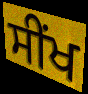
ਸੀਂਖ